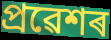
প্ৰৱেশৰ